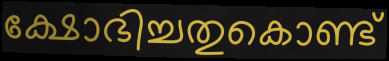
ക്ഷോഭിച്ചതുകൊണ്ട്